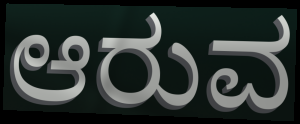
ಆರುವ